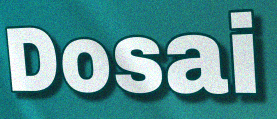
Dosai